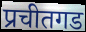
प्रचीतगड